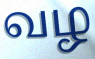
வழ